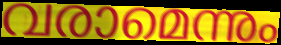
വരാമെന്നും